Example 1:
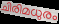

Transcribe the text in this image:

ചിരിമധുരം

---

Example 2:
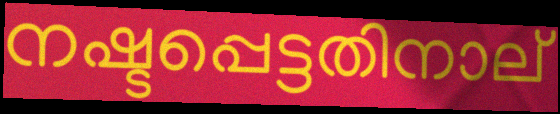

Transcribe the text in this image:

നഷ്ടപ്പെട്ടതിനാല്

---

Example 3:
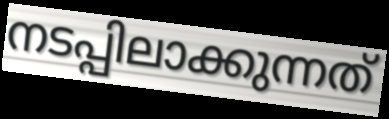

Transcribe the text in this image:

നടപ്പിലാക്കുന്നത്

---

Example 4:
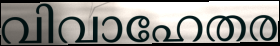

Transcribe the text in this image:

വിവാഹേതര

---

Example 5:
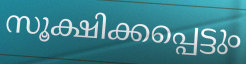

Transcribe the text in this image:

സൂക്ഷിക്കപ്പെട്ടും